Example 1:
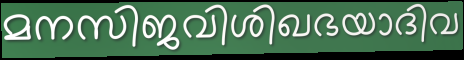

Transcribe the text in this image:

മനസിജവിശിഖഭയാദിവ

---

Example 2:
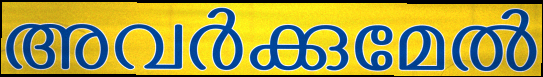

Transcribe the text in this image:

അവർക്കുമേൽ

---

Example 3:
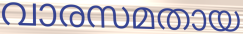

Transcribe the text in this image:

വാരസമതായ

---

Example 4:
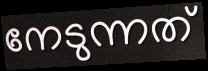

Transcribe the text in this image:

നേടുന്നത്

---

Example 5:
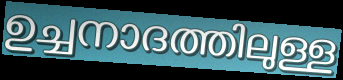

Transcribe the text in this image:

ഉച്ചനാദത്തിലുള്ള